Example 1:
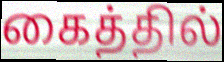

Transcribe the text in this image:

கைத்தில்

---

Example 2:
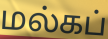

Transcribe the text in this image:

மல்கப்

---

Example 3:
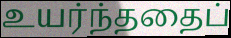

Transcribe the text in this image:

உயர்ந்ததைப்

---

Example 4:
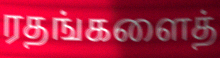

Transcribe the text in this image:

ரதங்களைத்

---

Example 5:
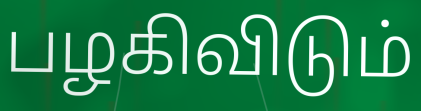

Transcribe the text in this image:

பழகிவிடும்